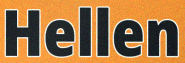
Hellen